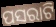
ପସରାଟି